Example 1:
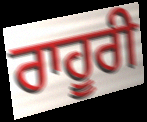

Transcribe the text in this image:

ਰਾਹੂਰੀ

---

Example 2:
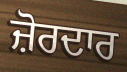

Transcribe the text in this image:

ਜ਼ੋਰਦਾਰ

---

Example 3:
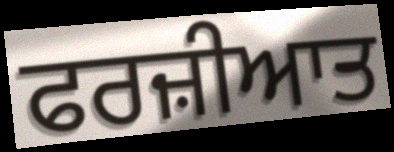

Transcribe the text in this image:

ਫਰਜ਼ੀਆਤ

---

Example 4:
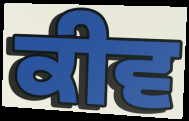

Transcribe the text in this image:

ਕੀਵ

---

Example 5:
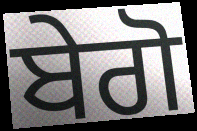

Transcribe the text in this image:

ਬੇਗੋ